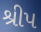
શ્રીપ